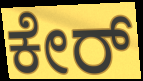
ಕೇರ್